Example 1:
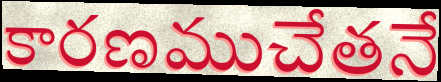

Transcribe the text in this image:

కారణముచేతనే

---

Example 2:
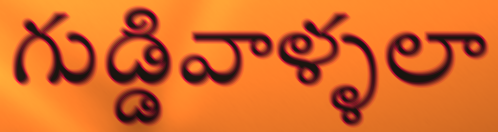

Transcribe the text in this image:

గుడ్డివాళ్ళలా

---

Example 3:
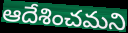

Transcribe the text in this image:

ఆదేశించమని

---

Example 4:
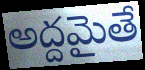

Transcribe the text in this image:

అద్దమైతే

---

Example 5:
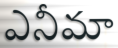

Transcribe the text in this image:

ఎనీమా